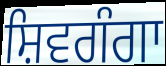
ਸ਼ਿਵਗੰਗਾ